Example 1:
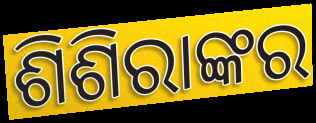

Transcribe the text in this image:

ଶିଶିରାଙ୍କର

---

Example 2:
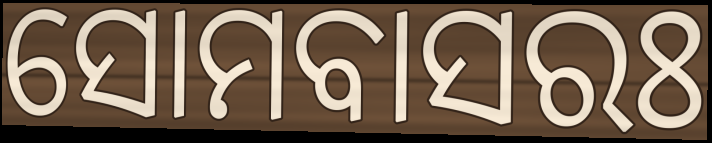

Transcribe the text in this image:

ସୋମବାସରଃ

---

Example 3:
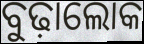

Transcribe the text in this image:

ବୁଢ଼ାଲୋକ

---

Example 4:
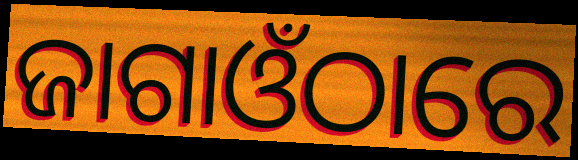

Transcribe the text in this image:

ଜାଗାଓଁଠାରେ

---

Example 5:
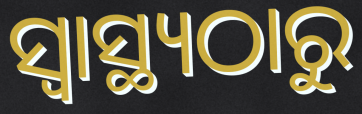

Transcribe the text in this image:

ସ୍ବାସ୍ଥ୍ୟଠାରୁ